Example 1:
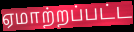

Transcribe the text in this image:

ஏமாற்றப்பட்ட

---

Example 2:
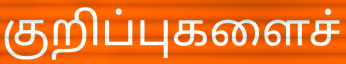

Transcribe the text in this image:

குறிப்புகளைச்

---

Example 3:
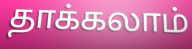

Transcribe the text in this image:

தாக்கலாம்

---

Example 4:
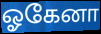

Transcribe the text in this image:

ஓகேனா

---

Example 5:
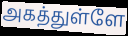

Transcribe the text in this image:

அகத்துள்ளே